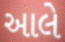
આલે